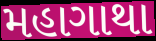
મહાગાથા